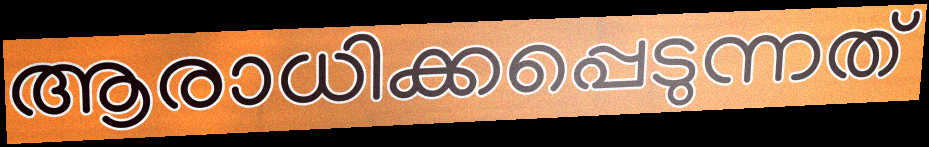
ആരാധിക്കപ്പെടുന്നത്